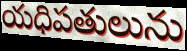
యధిపతులును